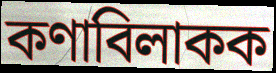
কণাবিলাকক